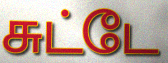
சுட்டே